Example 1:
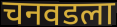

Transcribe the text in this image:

चनवडला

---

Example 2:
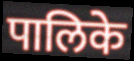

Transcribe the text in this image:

पालिके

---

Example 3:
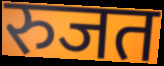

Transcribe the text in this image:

रुजत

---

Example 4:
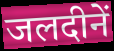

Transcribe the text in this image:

जलदीनें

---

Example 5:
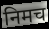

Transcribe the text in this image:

निमच